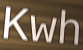
Kwh